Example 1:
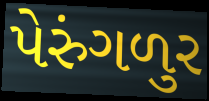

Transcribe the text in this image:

પેરુંગળુર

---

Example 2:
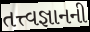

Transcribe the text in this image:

તત્ત્વજ્ઞાનની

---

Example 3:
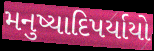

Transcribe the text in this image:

મનુષ્યાદિપર્યાયો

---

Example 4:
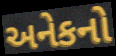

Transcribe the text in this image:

અનેકનો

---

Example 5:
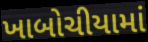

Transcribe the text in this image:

ખાબોચીયામાં